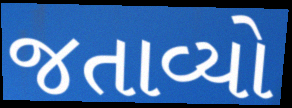
જતાવ્યો